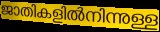
ജാതികളിൽനിന്നുള്ള